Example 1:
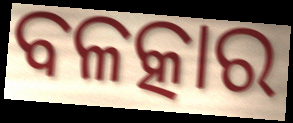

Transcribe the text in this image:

ବଳତ୍କାର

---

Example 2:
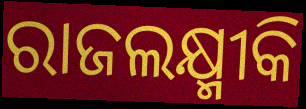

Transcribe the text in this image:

ରାଜଲକ୍ଷ୍ମୀକି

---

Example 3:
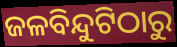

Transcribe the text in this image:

ଜଳବିନ୍ଦୁଟିଠାରୁ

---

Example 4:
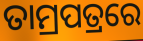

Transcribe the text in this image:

ତାମ୍ରପତ୍ରରେ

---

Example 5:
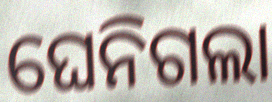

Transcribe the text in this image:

ଘେନିଗଲା